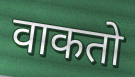
वाकतो